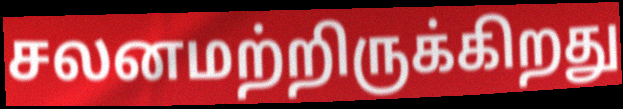
சலனமற்றிருக்கிறது